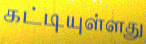
கட்டியுள்ளது